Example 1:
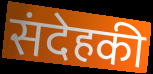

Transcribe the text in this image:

संदेहकी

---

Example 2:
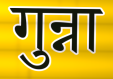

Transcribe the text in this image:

गुन्ना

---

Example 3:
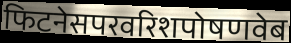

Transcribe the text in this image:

फिटनेसपरवरिशपोषणवेब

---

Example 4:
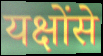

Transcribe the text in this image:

यक्षोंसे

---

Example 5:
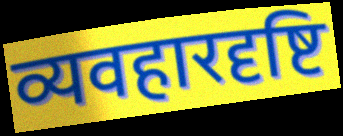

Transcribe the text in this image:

व्यवहारदृष्टि